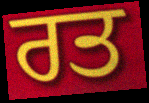
ਰਤ